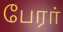
பேரர்